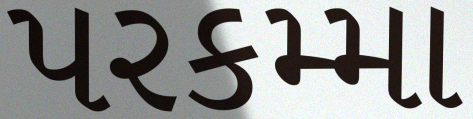
પરકમ્મા